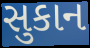
સુકાન